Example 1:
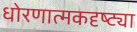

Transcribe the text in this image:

धोरणात्मकदृष्ट्या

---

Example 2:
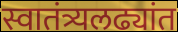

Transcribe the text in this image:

स्वातंत्र्यलढ्यांत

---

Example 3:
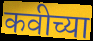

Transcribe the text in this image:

कवीच्या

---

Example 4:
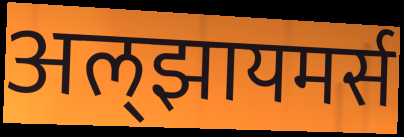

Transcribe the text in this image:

अल्झायमर्स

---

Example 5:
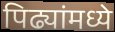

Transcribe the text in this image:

पिढ्यांमध्ये